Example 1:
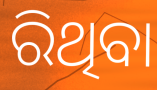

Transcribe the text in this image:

ରିଥିବା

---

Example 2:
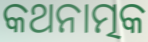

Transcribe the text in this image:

କଥନାତ୍ମକ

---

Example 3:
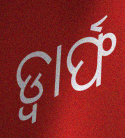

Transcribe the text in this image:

ଡ୍ୱାର୍ଫ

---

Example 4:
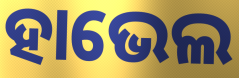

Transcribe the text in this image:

ହାଭେଲ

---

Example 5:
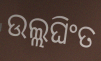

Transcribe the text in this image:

ଉଲ୍ଲଘିଂତ